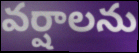
వర్షాలను